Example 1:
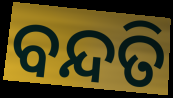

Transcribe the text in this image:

ବନ୍ଦତି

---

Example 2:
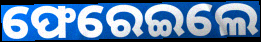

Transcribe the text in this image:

ଫେରେଇଲେ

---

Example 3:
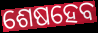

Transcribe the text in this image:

ଶେଷହେବ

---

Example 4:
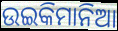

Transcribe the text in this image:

ଉଇକିମାନିଆ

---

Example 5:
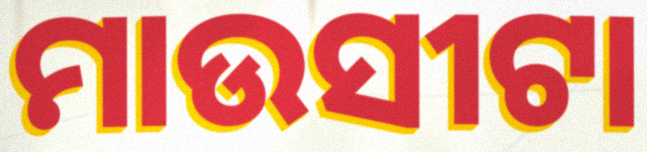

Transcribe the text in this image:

ମାଉସୀଟା